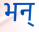
भन्